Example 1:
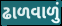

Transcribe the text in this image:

ઢાળવાળું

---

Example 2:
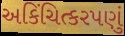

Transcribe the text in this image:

અકિંચિત્કરપણું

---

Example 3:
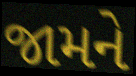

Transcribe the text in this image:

જામને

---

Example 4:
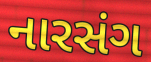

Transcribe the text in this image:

નારસંગ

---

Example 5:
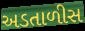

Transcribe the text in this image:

અડતાળીસ